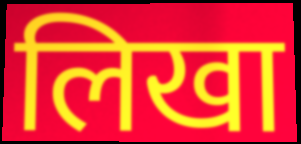
लिखा